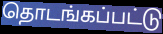
தொடங்கப்பட்டு